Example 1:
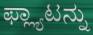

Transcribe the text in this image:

ಫ್ಲ್ಯಾಟನ್ನು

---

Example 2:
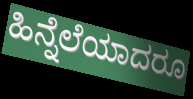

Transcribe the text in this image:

ಹಿನ್ನೆಲೆಯಾದರೂ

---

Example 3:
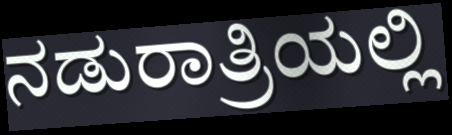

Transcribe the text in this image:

ನಡುರಾತ್ರಿಯಲ್ಲಿ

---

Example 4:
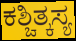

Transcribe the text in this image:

ಕಶ್ಚಿತ್ಕಸ್ಯ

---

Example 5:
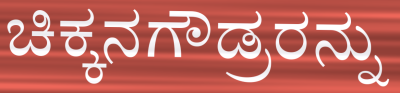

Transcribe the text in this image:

ಚಿಕ್ಕನಗೌಡ್ರರನ್ನು